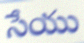
సేయు